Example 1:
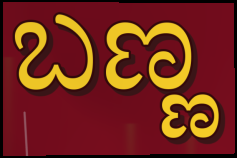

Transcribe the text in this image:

ಬಣ್ಣ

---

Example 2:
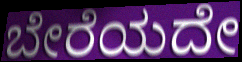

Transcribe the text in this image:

ಬೇರೆಯದೇ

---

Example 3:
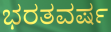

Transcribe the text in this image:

ಭರತವರ್ಷ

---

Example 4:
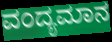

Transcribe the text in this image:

ವಂದ್ಯಮಾನ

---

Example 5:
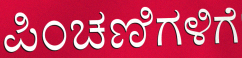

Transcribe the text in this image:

ಪಿಂಚಣಿಗಳಿಗೆ